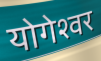
योगेश्वर